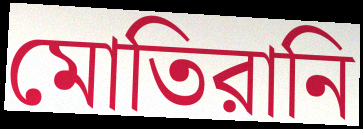
মোতিরানি